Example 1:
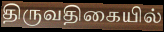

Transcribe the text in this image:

திருவதிகையில்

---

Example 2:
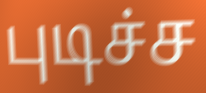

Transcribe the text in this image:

புடிச்ச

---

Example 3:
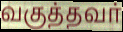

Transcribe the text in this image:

வகுத்தவர்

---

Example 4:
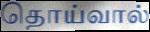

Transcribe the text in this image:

தொய்வால்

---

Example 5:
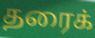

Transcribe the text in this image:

தரைக்